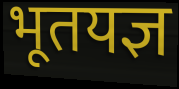
भूतयज्ञ